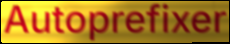
Autoprefixer